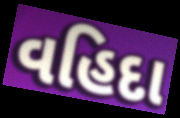
વહિદા